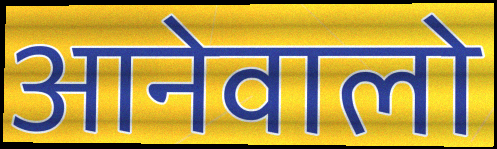
आनेवालो